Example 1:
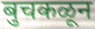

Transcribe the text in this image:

बुचकळून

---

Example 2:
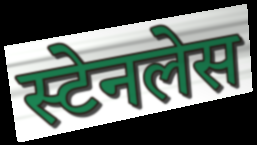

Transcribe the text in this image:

स्टेनलेस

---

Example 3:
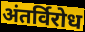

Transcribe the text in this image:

अंतर्विरोध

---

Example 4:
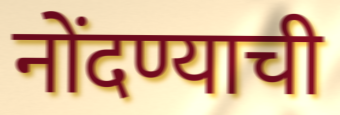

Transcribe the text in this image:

नोंदण्याची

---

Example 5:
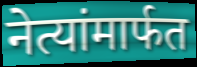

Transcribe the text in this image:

नेत्यांमार्फत